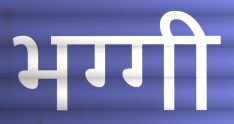
भग्गी